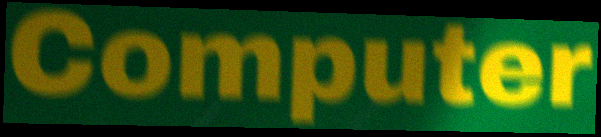
Computer